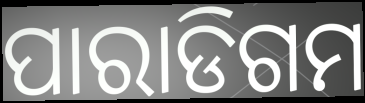
ପାରାଡିଗମ